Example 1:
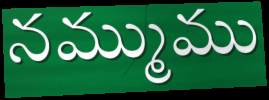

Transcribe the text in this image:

నమ్ముము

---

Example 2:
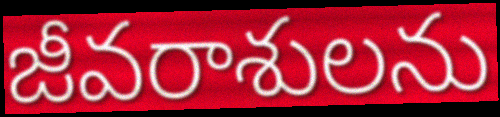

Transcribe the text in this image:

జీవరాశులను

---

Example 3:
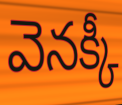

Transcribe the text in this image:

వెనక్కీ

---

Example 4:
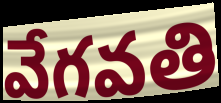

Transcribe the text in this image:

వేగవతి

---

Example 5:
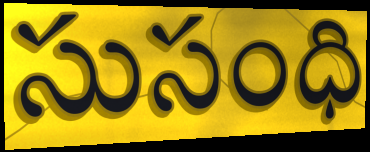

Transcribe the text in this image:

సుసంధి